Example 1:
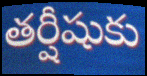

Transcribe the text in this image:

తర్షీషుకు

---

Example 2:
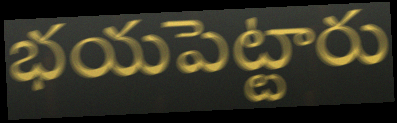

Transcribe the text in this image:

భయపెట్టారు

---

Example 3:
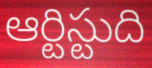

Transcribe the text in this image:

ఆర్టిస్టుది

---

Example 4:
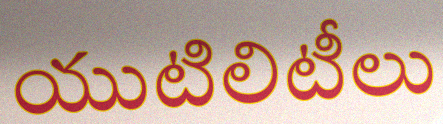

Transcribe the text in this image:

యుటిలిటీలు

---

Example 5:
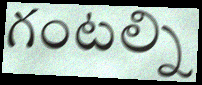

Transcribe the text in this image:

గంటల్ని